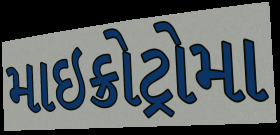
માઇક્રોટ્રોમા